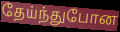
தேய்ந்துபோன